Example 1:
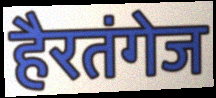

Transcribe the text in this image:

हैरतंगेज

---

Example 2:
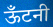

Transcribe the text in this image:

ऊँटनी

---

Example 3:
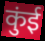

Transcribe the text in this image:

कुंई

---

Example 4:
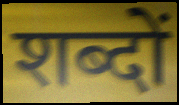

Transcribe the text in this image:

शब्‍दों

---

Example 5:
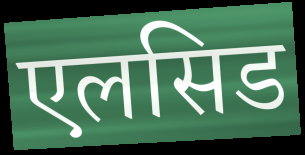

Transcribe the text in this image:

एलसिड